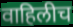
वाहिलीच